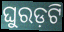
ଘୁରଡ଼ଟି